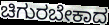
ಚಿಗುರಬೇಕಾದ